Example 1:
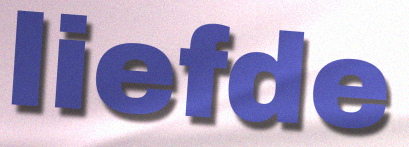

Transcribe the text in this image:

liefde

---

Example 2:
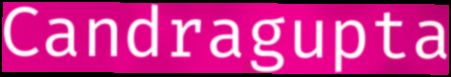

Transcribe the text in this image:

Candragupta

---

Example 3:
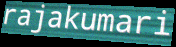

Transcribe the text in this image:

rajakumari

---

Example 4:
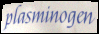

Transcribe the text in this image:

plasminogen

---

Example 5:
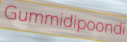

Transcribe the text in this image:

Gummidipoondi